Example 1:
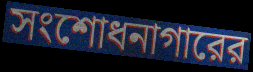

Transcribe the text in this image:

সংশোধনাগারের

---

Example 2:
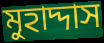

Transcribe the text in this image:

মুহাদ্দাস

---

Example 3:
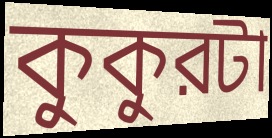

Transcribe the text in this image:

কুকুরটা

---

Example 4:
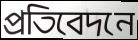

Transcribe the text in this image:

প্রতিবেদনে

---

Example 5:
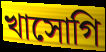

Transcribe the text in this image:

খাসোগি